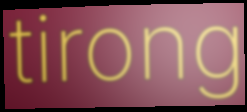
tirong